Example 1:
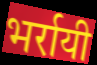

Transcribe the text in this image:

भर्रायी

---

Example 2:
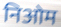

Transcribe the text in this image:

निओम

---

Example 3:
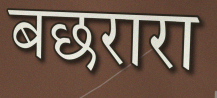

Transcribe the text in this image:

बछरारा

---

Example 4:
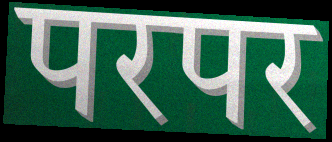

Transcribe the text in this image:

परपर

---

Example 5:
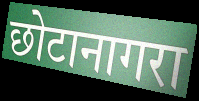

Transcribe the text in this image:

छोटानागरा